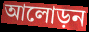
আলোড়ন